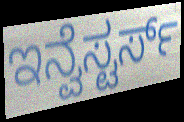
ಇನ್ವೆಸ್ಟರ್ಸ್